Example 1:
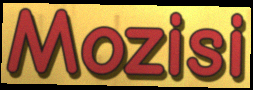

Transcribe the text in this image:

Mozisi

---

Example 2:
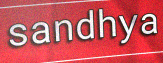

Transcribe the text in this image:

sandhya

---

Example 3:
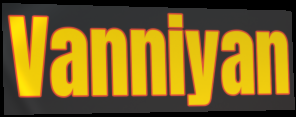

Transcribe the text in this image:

Vanniyan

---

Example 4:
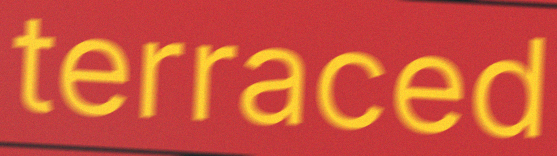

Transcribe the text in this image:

terraced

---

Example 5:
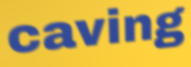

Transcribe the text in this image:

caving